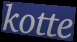
kotte